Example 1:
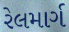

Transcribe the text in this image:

રેલમાર્ગ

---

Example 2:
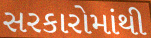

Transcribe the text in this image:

સરકારોમાંથી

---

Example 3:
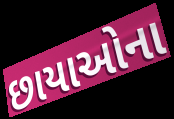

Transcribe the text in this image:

છાયાઓના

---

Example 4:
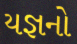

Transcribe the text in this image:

યજ્ઞનો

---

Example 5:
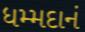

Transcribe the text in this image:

ધમ્મદાનં